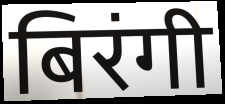
बिरंगी